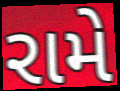
રામે